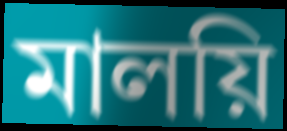
মালয়ি